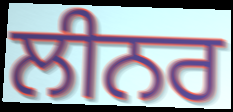
ਲੀਨਰ